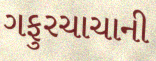
ગફુરચાચાની